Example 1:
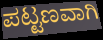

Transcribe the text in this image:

ಪಟ್ಟಣವಾಗಿ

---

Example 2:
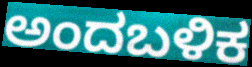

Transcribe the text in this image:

ಅಂದಬಳಿಕ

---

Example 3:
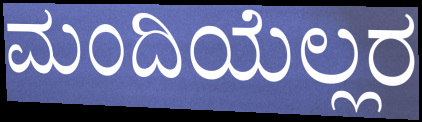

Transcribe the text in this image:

ಮಂದಿಯೆಲ್ಲರ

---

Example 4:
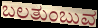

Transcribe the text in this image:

ಬಲತುಂಬುವ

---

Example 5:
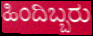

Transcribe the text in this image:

ಹಿಂದಿಬ್ಬರು